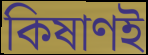
কিষাণই